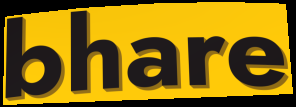
bhare